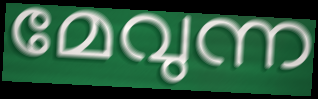
മേവുന്ന